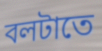
বলটাতে